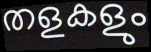
തളകളും